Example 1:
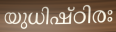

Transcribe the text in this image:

യുധിഷ്ഠിരഃ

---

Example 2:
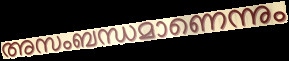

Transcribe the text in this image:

അസംബന്ധമാണെന്നും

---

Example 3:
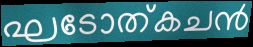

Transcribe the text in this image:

ഘടോത്കചൻ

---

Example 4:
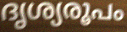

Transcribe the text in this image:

ദൃശ്യരൂപം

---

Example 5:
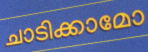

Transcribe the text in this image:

ചാടിക്കാമോ